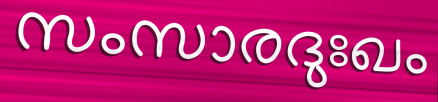
സംസാരദുഃഖം